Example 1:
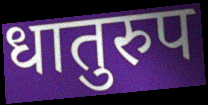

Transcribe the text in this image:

धातुरुप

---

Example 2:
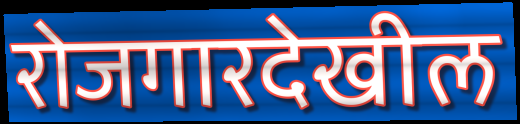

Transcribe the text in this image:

रोजगारदेखील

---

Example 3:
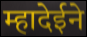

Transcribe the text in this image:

म्हादेईने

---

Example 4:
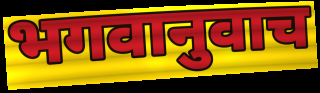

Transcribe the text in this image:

भगवानुवाच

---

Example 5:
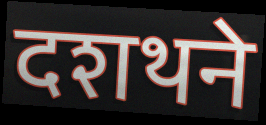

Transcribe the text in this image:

दशथने